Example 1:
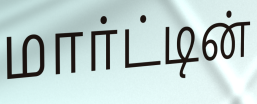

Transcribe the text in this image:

மார்ட்டின்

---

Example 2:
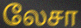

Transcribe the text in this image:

லேசா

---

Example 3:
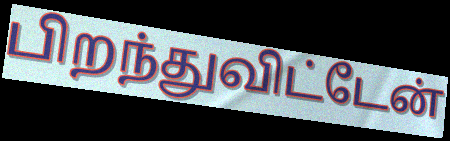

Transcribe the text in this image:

பிறந்துவிட்டேன்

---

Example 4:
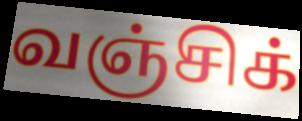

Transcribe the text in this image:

வஞ்சிக்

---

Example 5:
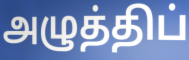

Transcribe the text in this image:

அழுத்திப்